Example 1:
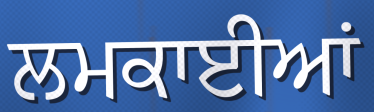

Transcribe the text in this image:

ਲਮਕਾਈਆਂ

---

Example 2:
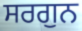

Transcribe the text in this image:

ਸਰਗੁਨ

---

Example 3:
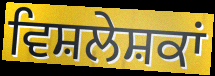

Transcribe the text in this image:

ਵਿਸ਼ਲੇਸ਼ਕਾਂ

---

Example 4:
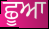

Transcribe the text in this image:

ਛੂਆ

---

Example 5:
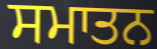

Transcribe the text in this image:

ਸਮਾਤਨ